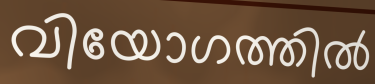
വിയോഗത്തിൽ